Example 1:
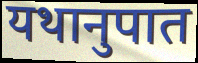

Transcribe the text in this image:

यथानुपात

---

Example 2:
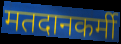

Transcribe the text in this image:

मतदानकर्मी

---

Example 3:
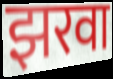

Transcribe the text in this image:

झरवा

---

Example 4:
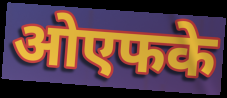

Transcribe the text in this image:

ओएफके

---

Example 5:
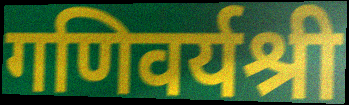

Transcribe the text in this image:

गणिवर्यश्री